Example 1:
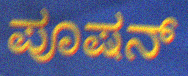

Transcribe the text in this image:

ಪೂಷನ್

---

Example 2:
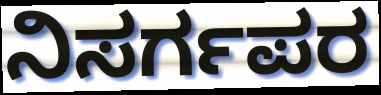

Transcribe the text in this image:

ನಿಸರ್ಗಪರ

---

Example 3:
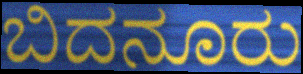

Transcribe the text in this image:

ಬಿದನೂರು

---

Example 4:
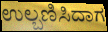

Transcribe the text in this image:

ಉಲ್ಬಣಿಸಿದಾಗ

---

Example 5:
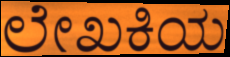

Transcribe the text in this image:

ಲೇಖಕಿಯ